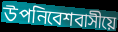
উপনিবেশবাসীয়ে